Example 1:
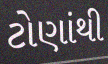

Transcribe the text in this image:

ટોણાંથી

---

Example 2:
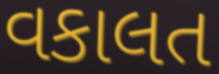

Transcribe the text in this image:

વકાલત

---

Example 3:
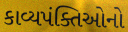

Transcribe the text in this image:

કાવ્યપંક્તિઓનો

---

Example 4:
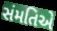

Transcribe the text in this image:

સંમતિએ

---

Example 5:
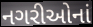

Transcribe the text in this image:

નગરીઓનાં